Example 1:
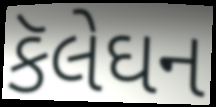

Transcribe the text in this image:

કૅલેઘન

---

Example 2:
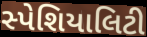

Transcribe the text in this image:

સ્પેશિયાલિટી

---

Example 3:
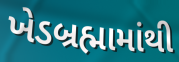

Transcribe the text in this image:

ખેડબ્રહ્મામાંથી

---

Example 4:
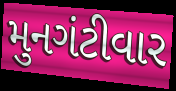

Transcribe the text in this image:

મુનગંટીવાર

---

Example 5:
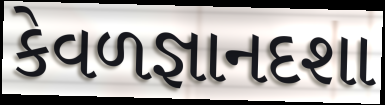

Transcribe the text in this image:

કેવળજ્ઞાનદશા